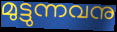
മുട്ടുന്നവനു